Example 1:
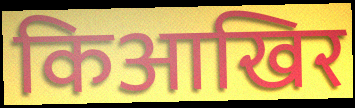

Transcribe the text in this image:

किआखिर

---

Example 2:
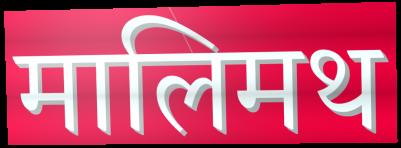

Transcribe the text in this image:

मालिमथ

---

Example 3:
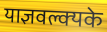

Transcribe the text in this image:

याज्ञवल्क्यके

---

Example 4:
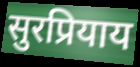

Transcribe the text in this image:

सुरप्रियाय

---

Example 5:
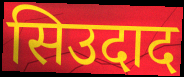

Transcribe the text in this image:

सिउदाद